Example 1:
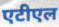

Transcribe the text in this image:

एटीएल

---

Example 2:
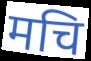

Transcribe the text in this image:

मचि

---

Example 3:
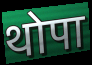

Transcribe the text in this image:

थोपा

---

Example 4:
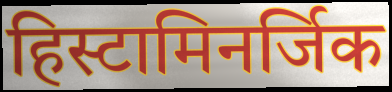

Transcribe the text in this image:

हिस्टामिनर्जिक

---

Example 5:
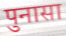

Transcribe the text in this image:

पुनासा